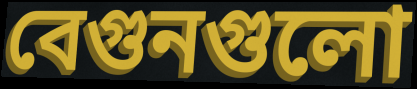
বেগুনগুলো